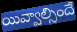
యివ్వాల్సిందే